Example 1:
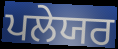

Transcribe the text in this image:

ਪਲੇਯਰ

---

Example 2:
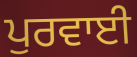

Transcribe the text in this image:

ਪੁਰਵਾਈ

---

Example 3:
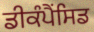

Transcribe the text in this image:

ਡੀਕੰਪੈਂਸਿਡ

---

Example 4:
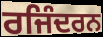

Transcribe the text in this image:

ਰਜਿੰਦਰਨ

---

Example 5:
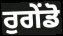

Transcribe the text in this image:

ਰੁਗੇਂਡੋ